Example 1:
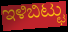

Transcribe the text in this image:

ಇಳಿಬಿಟ್ಟು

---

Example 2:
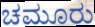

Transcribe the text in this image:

ಚಮೂರು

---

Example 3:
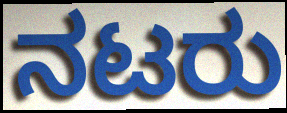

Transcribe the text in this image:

ನಟರು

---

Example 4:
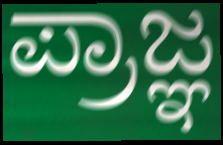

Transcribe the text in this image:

ಪ್ರಾಜ್ಞ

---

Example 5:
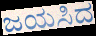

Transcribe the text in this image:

ಜಯಸಿದ